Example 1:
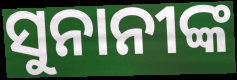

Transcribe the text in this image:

ସୁନାନୀଙ୍କ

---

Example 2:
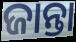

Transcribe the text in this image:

ଜାନ୍ତା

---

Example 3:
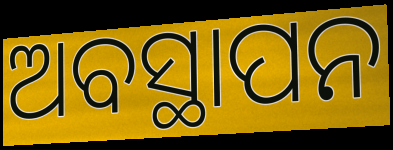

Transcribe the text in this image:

ଅବସ୍ଥାପନ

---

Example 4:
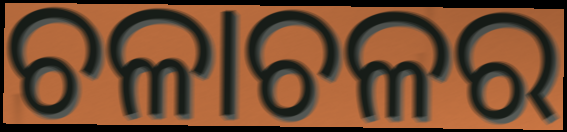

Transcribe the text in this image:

ଚଳାଚଳର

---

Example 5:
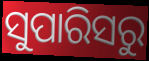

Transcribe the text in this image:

ସୁପାରିସରୁ